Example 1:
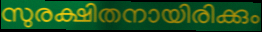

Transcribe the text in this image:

സുരക്ഷിതനായിരിക്കും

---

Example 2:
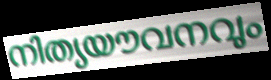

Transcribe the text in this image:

നിത്യയൗവനവും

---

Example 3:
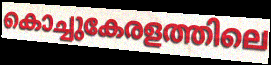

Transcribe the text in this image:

കൊച്ചുകേരളത്തിലെ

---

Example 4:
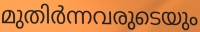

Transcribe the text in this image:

മുതിർന്നവരുടെയും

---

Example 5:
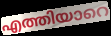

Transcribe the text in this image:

എത്തിയാറെ